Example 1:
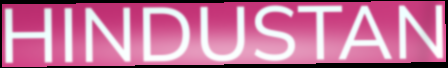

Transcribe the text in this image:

HINDUSTAN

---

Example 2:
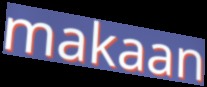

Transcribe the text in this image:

makaan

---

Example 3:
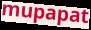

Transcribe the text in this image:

mupapat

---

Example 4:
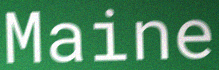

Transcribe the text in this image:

Maine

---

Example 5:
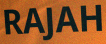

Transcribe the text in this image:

RAJAH